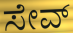
ಸೇವ್